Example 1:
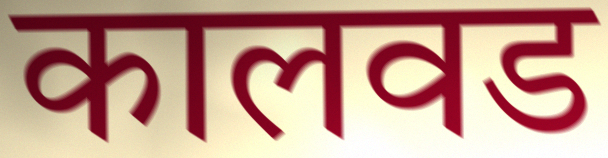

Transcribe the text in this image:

कालवड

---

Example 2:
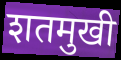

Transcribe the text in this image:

शतमुखी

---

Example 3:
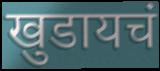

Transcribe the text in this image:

खुडायचं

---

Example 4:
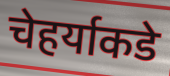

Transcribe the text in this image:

चेहर्याकडे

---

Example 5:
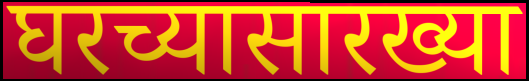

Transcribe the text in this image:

घरच्यासारख्या